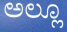
ಅಲ್ಲೂ